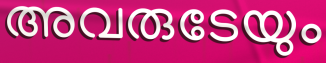
അവരുടേയും